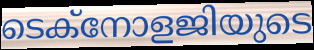
ടെക്നോളജിയുടെ